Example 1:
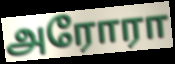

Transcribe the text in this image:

அரோரா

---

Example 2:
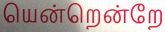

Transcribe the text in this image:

யென்றென்றே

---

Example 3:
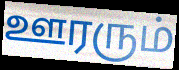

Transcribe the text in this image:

ஊரரும்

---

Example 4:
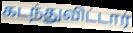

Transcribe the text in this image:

கடந்துவிட்டார்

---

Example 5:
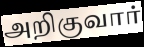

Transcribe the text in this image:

அறிகுவார்